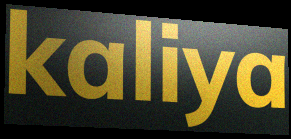
kaliya